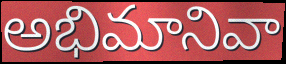
అభిమానివా